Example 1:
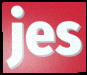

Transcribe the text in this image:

jes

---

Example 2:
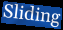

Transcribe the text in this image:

Sliding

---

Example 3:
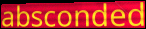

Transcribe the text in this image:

absconded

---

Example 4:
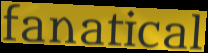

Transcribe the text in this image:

fanatical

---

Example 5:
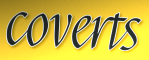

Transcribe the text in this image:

coverts